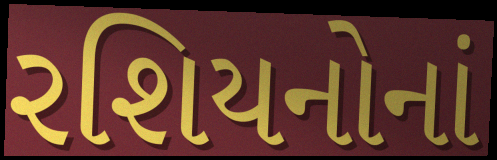
રશિયનોનાં